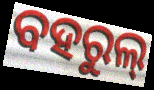
ବହରୁଲ୍